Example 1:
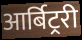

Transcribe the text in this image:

आर्बिट्ररी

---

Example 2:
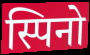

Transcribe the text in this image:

स्पिनो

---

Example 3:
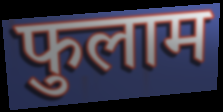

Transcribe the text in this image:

फुलाम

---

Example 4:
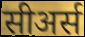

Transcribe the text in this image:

सीअर्स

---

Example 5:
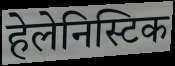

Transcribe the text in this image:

हेलेनिस्टिक